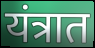
यंत्रात